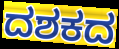
ದಶಕದ